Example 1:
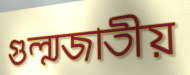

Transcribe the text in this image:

গুল্মজাতীয়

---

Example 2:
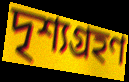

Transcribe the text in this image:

দৃশ্যগ্ৰহণ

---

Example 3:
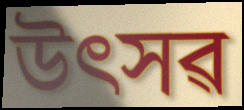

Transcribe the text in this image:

উৎসৱ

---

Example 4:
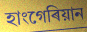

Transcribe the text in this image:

হাংগেৰিয়ান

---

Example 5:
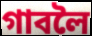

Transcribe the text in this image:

গাবলৈ